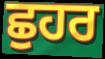
ਛੁਹਰ